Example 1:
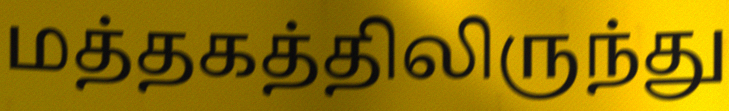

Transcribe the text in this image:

மத்தகத்திலிருந்து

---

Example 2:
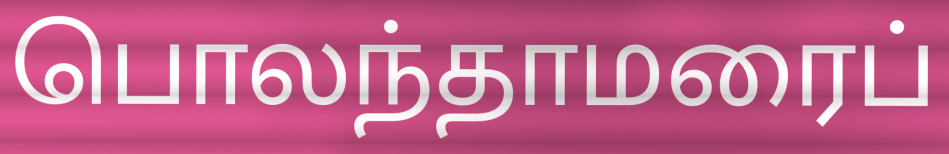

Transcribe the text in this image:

பொலந்தாமரைப்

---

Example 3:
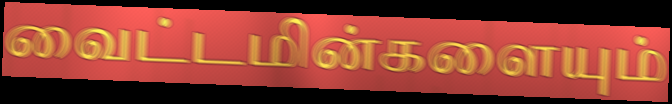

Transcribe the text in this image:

வைட்டமின்களையும்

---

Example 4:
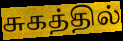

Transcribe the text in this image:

சுகத்தில்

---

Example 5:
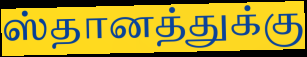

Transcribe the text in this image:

ஸ்தானத்துக்கு